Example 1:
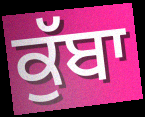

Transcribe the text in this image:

ਕੁੱਬਾ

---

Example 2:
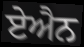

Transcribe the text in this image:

ਏਐਨ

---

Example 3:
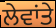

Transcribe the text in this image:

ਲੇਵਾਂਤੇ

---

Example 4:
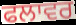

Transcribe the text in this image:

ਫਲਾਵਰ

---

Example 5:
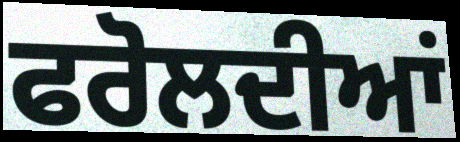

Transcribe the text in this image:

ਫਰੋਲਦੀਆਂ